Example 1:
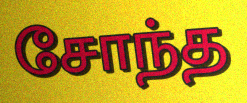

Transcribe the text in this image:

சோந்த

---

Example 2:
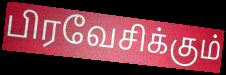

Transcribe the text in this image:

பிரவேசிக்கும்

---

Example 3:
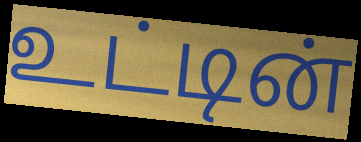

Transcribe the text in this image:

உட்டின்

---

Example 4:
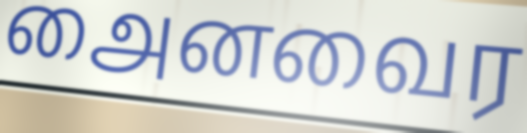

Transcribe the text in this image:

அைனவைர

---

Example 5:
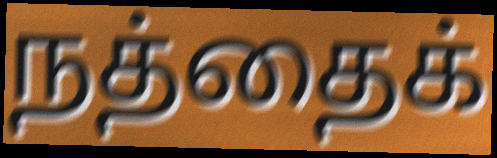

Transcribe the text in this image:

நத்தைக்